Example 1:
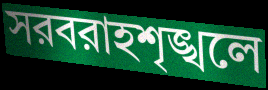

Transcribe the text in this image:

সরবরাহশৃঙ্খলে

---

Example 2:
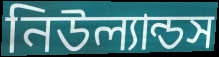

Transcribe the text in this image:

নিউল্যান্ডস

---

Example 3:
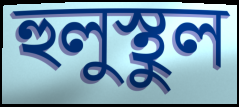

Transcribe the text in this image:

হুলুস্থুল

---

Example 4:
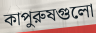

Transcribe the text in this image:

কাপুরুষগুলো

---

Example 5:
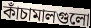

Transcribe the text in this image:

কাঁচামালগুলো